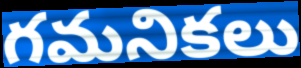
గమనికలు